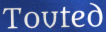
Touted